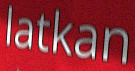
latkan